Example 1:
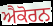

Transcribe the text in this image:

ਐਕੋਰਨ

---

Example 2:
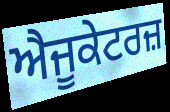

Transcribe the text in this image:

ਐਜੂਕੇਟਰਜ਼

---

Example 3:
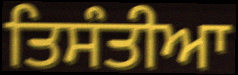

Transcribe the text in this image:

ਤਿਸੰਤੀਆ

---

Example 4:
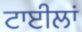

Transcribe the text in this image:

ਟਾਈਲਾਂ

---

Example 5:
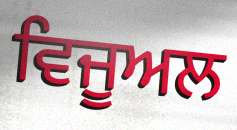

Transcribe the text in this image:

ਵਿਜੂਅਲ